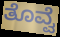
ತೊವ್ವೆ